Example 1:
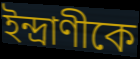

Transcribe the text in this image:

ইন্দ্রাণীকে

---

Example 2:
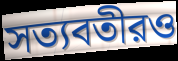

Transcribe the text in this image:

সত্যবতীরও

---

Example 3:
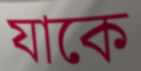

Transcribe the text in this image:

যাকে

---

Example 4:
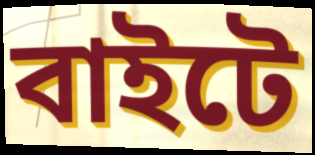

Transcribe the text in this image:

বাইটে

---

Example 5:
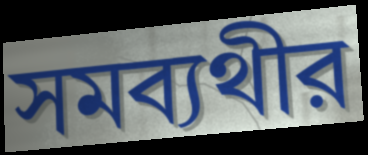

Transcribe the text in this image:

সমব্যথীর